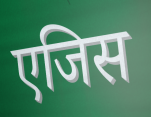
एजिस